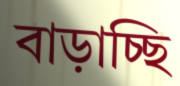
বাড়াচ্ছি